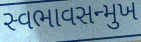
સ્વભાવસન્મુખ